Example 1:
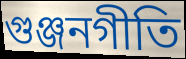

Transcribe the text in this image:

গুঞ্জনগীতি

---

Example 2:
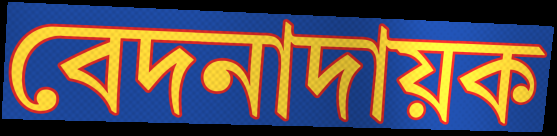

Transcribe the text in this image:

বেদনাদায়ক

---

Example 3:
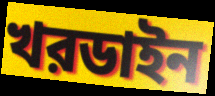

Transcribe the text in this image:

খরডাইন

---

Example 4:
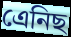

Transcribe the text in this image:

এেনিছ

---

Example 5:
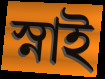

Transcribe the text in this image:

স্নাই